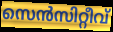
സെൻസിറ്റീവ്